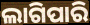
ଲାଗିପାରି